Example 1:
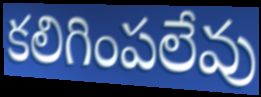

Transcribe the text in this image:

కలిగింపలేవు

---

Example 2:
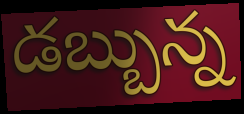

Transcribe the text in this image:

డబ్బున్న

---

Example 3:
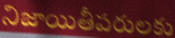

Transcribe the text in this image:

నిజాయితీపరులకు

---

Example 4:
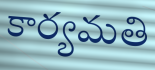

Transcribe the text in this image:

కార్యమతి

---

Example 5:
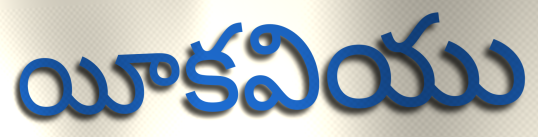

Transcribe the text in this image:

యీకవియు